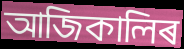
আজিকালিৰ